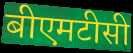
बीएमटीसी